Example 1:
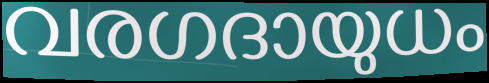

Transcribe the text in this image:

വരഗദായുധം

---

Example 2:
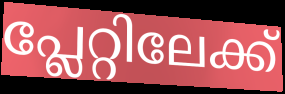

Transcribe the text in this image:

പ്ലേറ്റിലേക്ക്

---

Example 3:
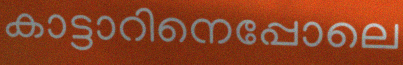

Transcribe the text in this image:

കാട്ടാറിനെപ്പോലെ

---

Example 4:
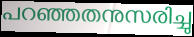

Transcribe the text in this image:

പറഞ്ഞതനുസരിച്ചു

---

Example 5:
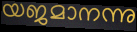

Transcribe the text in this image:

യജമാനന്നു